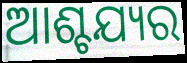
ଆଶ୍ଚଯ୍ୟର